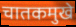
चातकमुखे